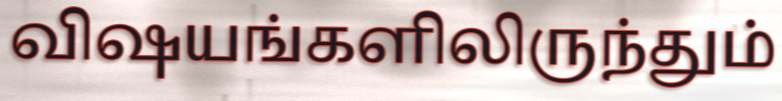
விஷயங்களிலிருந்தும்